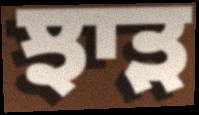
ਝਾੜ